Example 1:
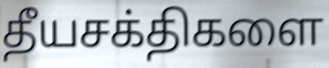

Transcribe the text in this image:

தீயசக்திகளை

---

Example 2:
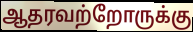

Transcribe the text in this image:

ஆதரவற்றோருக்கு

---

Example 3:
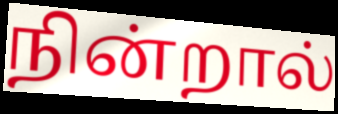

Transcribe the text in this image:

நின்றால்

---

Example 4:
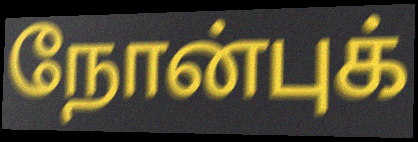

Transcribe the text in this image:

நோன்புக்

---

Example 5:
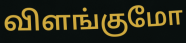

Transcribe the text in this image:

விளங்குமோ